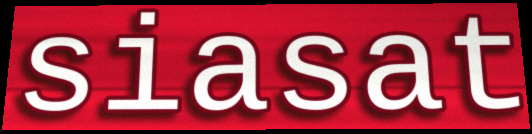
siasat